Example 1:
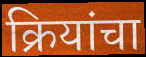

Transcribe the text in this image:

क्रियांचा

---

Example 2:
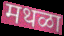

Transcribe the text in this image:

मथळा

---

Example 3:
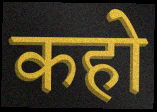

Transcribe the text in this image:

कहो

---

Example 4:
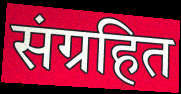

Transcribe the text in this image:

संग्रहित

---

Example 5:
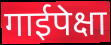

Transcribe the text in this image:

गाईपेक्षा